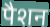
पैशन